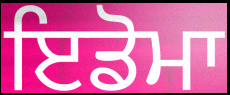
ਇਡੋਮਾ